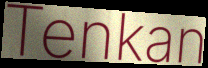
Tenkan